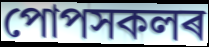
পোপসকলৰ